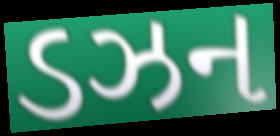
ડઝન